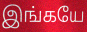
இங்கயே